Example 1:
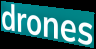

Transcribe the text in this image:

drones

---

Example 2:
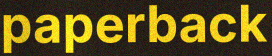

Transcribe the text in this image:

paperback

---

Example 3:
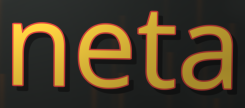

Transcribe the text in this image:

neta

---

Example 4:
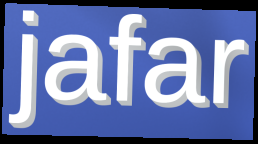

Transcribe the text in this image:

jafar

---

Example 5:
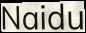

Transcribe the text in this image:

Naidu